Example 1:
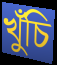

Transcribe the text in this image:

খুঁচি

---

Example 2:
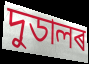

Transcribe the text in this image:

দুডালৰ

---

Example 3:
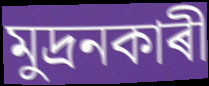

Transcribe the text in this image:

মুদ্ৰনকাৰী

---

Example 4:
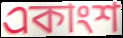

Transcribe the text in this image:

একাংশ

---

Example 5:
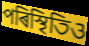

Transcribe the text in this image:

পৰিস্থিতিও